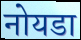
नोयडा